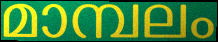
മാമ്പലം